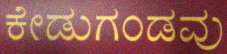
ಕೇಡುಗಂಡವು